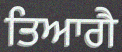
ਤਿਆਗੈ